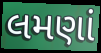
લમણાં